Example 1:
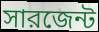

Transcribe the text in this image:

সারজেন্ট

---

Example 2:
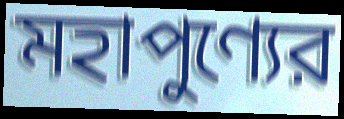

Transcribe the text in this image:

মহাপুণ্যের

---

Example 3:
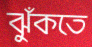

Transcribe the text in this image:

ঝুঁকতে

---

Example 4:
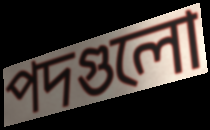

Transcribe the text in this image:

পদগুলো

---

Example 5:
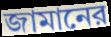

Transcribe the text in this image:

জামানের